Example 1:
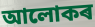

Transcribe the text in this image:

আলোকৰ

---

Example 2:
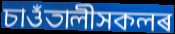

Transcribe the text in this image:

চাওঁতালীসকলৰ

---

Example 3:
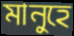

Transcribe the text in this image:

মানুহে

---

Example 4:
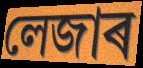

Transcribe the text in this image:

লেজাৰ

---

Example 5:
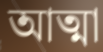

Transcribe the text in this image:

আত্মা